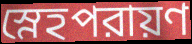
স্নেহপরায়ণ